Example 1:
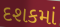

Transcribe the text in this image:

દશકમાં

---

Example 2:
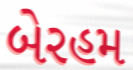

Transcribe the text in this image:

બેરહમ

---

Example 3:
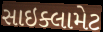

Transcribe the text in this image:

સાઇક્લામેટ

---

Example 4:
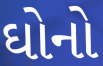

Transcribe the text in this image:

ઘોનો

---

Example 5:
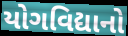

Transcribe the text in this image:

યોગવિદ્યાનો